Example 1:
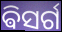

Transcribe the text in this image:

ଵିସର୍ଗ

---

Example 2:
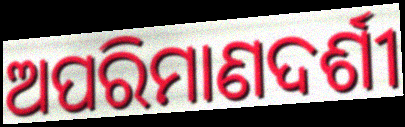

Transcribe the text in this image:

ଅପରିମାଣଦର୍ଶୀ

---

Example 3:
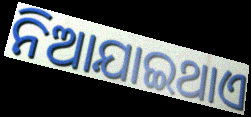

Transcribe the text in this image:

ନିଆଯାଇଥାଏ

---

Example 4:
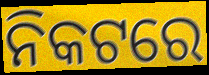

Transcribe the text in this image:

ନିକଟରେ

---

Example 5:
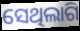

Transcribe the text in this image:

ସେଥିଲାଗି